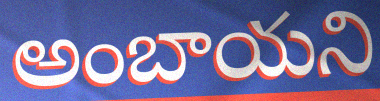
అంబాయని